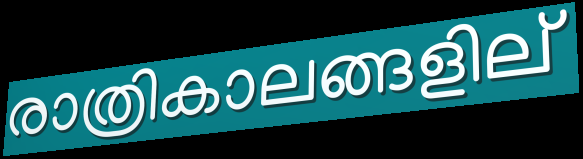
രാത്രികാലങ്ങളില്